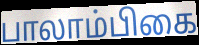
பாலாம்பிகை